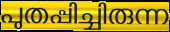
പുതപ്പിച്ചിരുന്ന